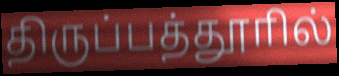
திருப்பத்தூரில்